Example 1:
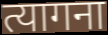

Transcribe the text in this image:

त्यागना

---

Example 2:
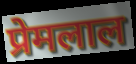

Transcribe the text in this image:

प्रेमलाल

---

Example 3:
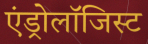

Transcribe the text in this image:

एंड्रोलॉजिस्ट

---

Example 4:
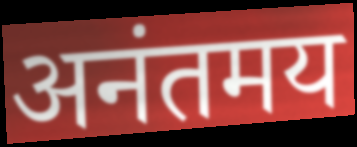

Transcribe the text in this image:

अनंतमय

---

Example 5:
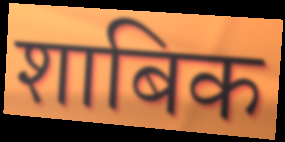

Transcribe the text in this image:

शाबिक